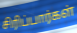
சிரிப்பார்கள்